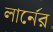
লার্নের